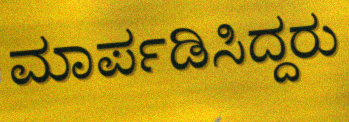
ಮಾರ್ಪಡಿಸಿದ್ದರು